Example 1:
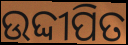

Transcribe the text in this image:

ଉଦ୍ଦୀପିତ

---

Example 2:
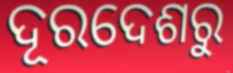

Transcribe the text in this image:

ଦୂରଦେଶରୁ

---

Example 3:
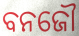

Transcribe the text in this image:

ବନଜୌ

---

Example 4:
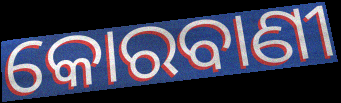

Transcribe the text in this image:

କୋରବାଣୀ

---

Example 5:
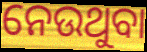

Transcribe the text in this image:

ନେଉଥୁବା